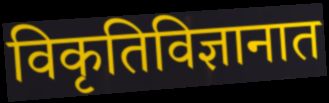
विकृतिविज्ञानात